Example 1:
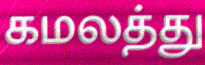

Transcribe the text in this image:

கமலத்து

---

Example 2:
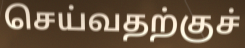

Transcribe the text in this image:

செய்வதற்குச்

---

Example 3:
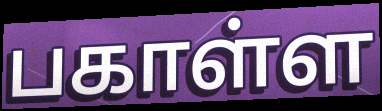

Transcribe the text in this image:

பகாள்ள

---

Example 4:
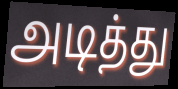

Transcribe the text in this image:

அடித்து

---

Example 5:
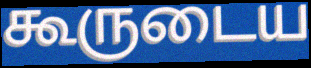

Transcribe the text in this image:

கூருடைய